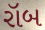
રૉબ